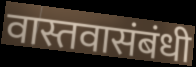
वास्तवासंबंधी